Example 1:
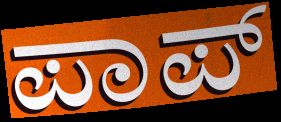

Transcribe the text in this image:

ಪಾಪ್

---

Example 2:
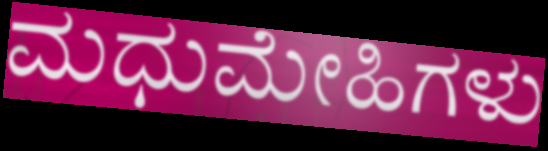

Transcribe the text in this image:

ಮಧುಮೇಹಿಗಳು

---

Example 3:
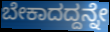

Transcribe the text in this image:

ಬೇಕಾದದ್ದನ್ನೇ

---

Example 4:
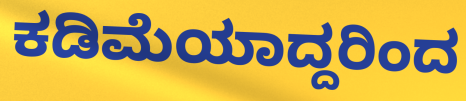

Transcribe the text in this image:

ಕಡಿಮೆಯಾದ್ದರಿಂದ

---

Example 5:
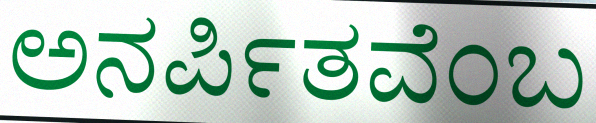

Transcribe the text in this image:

ಅನರ್ಪಿತವೆಂಬ